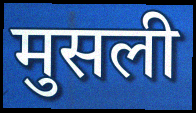
मुसली